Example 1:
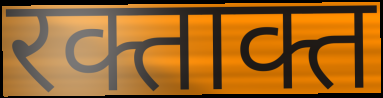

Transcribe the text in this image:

रक्ताक्त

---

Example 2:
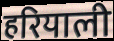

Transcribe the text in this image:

हरियाली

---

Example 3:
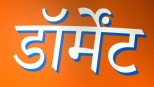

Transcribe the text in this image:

डॉर्मेंट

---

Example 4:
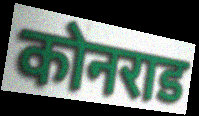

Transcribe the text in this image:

कोनराड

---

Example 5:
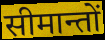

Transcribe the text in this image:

सीमान्तों